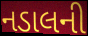
નડાલની